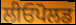
ਲੀਓਪੋਲਡ